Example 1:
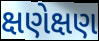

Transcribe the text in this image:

ક્ષણેક્ષણ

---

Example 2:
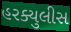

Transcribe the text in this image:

હરક્યુલીસ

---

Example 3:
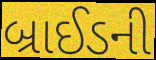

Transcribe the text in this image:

બ્રાઈડની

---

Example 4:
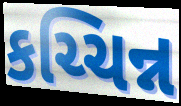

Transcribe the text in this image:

કચ્ચિન્ન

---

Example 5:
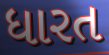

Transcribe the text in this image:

ધારત